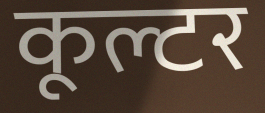
कूल्‍टर